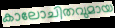
കാലോചിതവുമായ